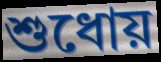
শুধোয়